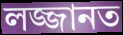
লজ্জানত